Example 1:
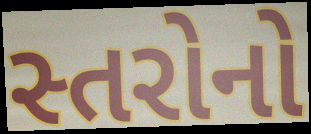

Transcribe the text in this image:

સ્તરોનો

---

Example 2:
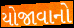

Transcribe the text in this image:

યોજાવાનો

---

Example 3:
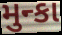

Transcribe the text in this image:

મુન્કા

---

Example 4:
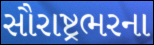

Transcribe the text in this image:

સૌરાષ્ટ્રભરના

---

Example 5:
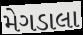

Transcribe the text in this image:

મેગડાલા